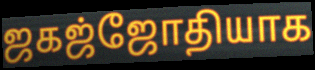
ஜகஜ்ஜோதியாக